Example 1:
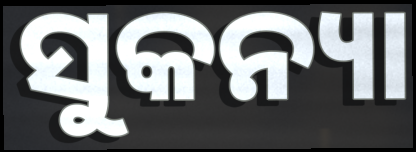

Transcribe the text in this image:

ସୁକନ୍ୟା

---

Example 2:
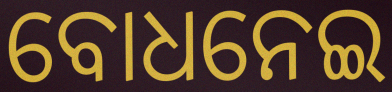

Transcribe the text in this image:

ବୋଧନେଇ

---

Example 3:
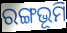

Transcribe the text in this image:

ରଙ୍ଗଭୂମି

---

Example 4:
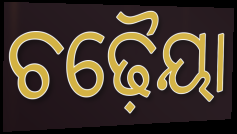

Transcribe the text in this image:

ଚଢ଼ୈୟା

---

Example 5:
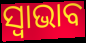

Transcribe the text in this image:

ସ୍ୱାଭାବ